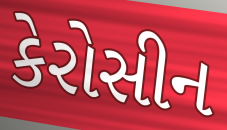
કેરોસીન